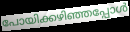
പോയിക്കഴിഞ്ഞപ്പോൾ